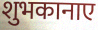
शुभकानाए